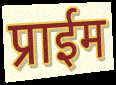
प्राईम